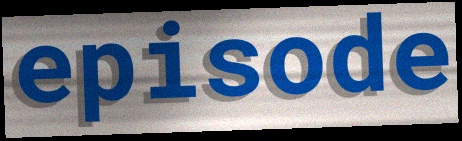
episode